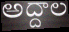
అద్దాల